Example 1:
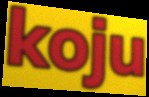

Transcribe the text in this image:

koju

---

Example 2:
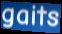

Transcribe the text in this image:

gaits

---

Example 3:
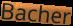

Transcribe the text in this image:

Bacher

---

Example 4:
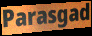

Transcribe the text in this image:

Parasgad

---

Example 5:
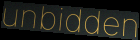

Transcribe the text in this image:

unbidden